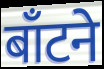
बाँटने